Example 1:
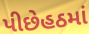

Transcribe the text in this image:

પીછેહઠમાં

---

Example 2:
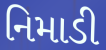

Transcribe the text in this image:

નિમાડી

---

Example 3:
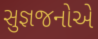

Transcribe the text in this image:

સુજ્ઞજનોએ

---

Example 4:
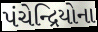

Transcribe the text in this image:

પંચેન્દ્રિયોના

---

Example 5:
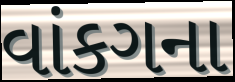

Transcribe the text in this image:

વાંકગના